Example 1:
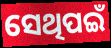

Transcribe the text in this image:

ସେଥିପଇଁ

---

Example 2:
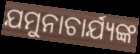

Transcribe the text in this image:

ଯମୁନାଚାର୍ଯ୍ୟଙ୍କ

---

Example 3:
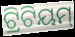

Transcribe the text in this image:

ଟ୍ରିଟିୟମ୍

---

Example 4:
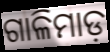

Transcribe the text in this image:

ଗାଳିମାଡ଼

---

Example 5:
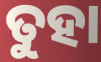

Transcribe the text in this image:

ତୁହା